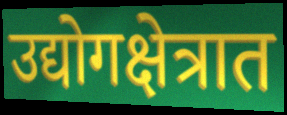
उद्योगक्षेत्रात